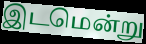
இடமென்று